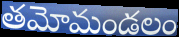
తమోమండలం